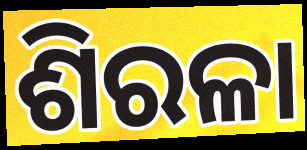
ଶିରଳା